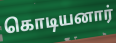
கொடியனார்